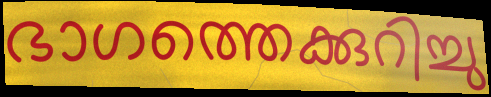
ഭാഗത്തെക്കുറിച്ചു